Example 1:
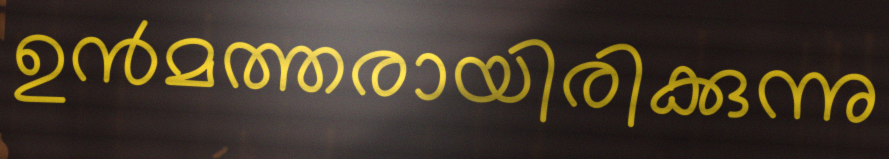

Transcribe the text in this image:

ഉൻമത്തരായിരിക്കുന്നു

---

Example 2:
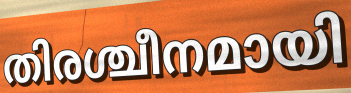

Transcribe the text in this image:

തിരശ്ചീനമായി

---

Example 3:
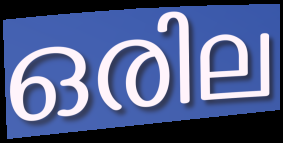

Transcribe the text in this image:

ഒരില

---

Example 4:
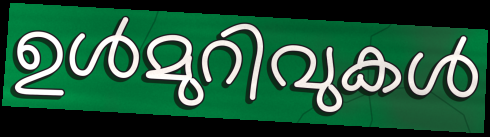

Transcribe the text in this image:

ഉൾമുറിവുകൾ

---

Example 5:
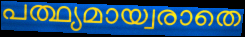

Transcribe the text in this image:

പത്ഥ്യമായ്വരാതെ